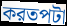
করতপটা